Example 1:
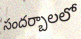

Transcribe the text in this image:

సందర్బాలలో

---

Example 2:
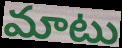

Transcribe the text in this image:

మాటు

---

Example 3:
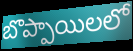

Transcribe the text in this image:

బొప్పాయిలలో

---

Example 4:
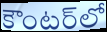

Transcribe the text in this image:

కౌంటర్‌లో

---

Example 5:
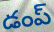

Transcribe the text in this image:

డంప్